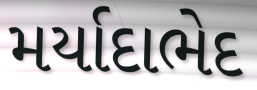
મર્યાદાભેદ